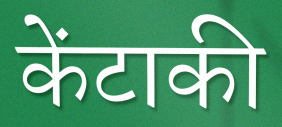
केंटाकी